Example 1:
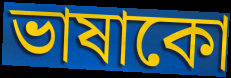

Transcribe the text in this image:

ভাষাকো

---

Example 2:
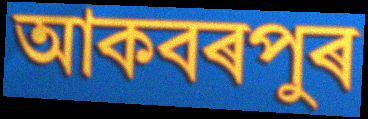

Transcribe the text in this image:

আকবৰপুৰ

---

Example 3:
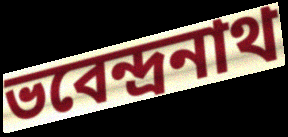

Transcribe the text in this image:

ভবেন্দ্ৰনাথ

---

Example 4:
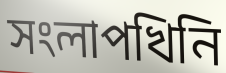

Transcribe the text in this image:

সংলাপখিনি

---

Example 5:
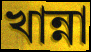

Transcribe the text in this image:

খান্না